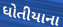
ધોતીયાના